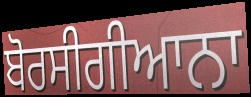
ਬੋਰਸੀਗੀਆਨਾ